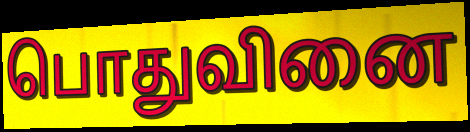
பொதுவினை